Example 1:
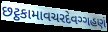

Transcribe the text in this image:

છટ્ઠકામાવચરદેવગ્ગહણં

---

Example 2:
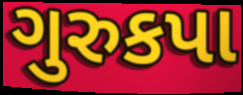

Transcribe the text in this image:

ગુરુકપા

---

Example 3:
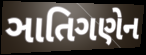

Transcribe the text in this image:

ઞાતિગણેન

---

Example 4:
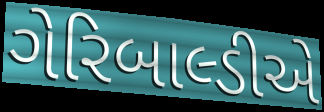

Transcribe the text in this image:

ગેરિબાલ્ડીએ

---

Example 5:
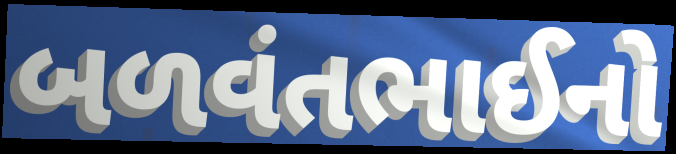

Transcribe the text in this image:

બળવંતભાઈનો